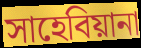
সাহেবিয়ানা